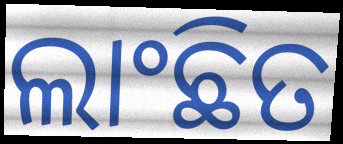
ଲାଂଛିତ